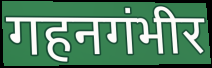
गहनगंभीर